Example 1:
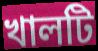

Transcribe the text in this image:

খালটি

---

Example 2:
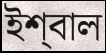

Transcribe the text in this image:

ইশ্‌বাল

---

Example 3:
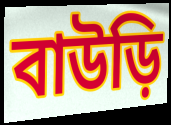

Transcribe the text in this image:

বাউড়ি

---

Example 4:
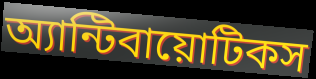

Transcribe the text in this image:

অ্যান্টিবায়োটিকস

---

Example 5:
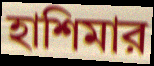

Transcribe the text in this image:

হাশিমার